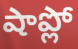
షాప్లో